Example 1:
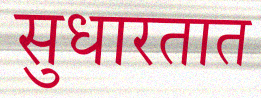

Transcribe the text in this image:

सुधारतात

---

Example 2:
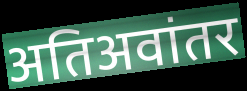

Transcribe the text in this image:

अतिअवांतर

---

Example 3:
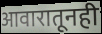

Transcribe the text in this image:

आवारातूनही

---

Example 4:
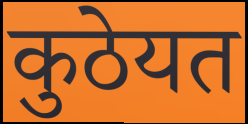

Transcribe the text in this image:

कुठेयत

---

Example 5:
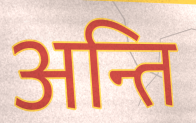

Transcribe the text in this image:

अन्ति